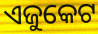
ଏଜୁକେଟ